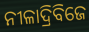
ନୀଳାଦ୍ରିବିଜେ